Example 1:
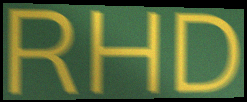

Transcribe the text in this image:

RHD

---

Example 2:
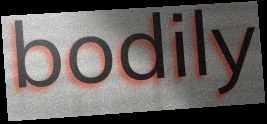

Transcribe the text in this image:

bodily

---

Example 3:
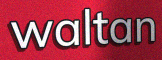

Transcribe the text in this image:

waltan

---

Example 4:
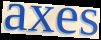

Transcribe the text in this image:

axes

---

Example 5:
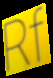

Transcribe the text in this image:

Rf